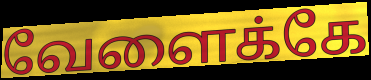
வேளைக்கே